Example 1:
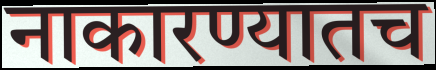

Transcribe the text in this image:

नाकारण्यातच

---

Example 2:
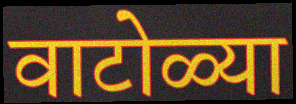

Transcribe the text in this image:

वाटोळ्या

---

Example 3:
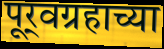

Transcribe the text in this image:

पूर्वग्रहाच्या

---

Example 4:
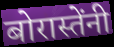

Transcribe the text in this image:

बोरास्तेंनी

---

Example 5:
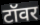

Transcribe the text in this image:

टॉवर